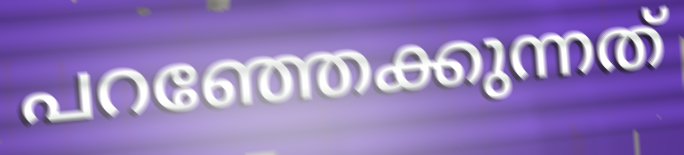
പറഞ്ഞേക്കുന്നത്